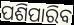
ପଶିପାରିବ